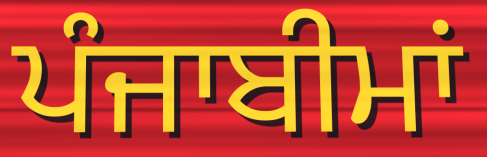
ਪੰਜਾਬੀਮਾਂ